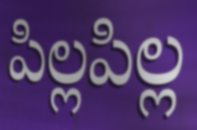
పిల్లపిల్ల